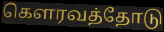
கௌரவத்தோடு